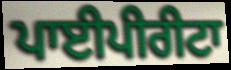
ਪਾਈਪੀਰੀਟਾ